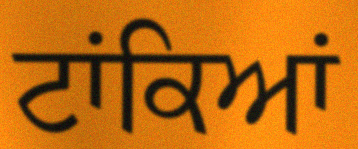
ਟਾਂਕਿਆਂ